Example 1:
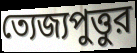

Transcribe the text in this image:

ত্যেজ্যপুত্তুর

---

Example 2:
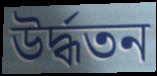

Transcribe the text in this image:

উর্দ্ধতন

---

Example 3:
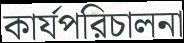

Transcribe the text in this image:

কার্যপরিচালনা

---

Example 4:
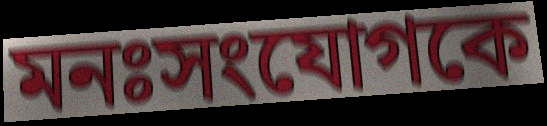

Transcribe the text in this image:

মনঃসংযোগকে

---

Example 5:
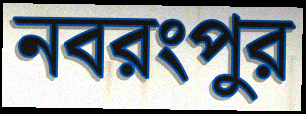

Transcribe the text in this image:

নবরংপুর